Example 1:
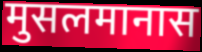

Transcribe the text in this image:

मुसलमानास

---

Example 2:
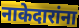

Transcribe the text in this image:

नाकेदारांना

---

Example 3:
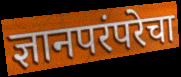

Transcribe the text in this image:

ज्ञानपरंपरेचा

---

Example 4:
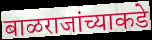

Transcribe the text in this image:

बाळराजांच्याकडे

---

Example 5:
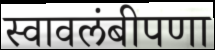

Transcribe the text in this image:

स्वावलंबीपणा